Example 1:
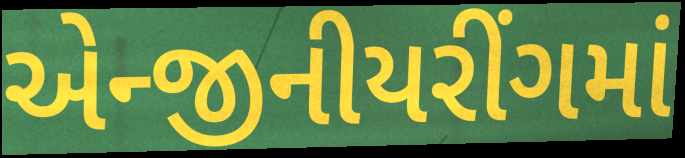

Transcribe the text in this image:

એન્જીનીયરીંગમાં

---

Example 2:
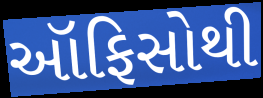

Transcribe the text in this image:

ઑફિસોથી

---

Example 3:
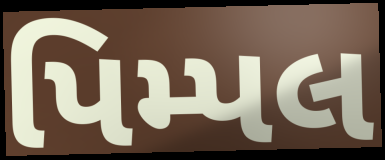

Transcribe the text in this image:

પિમ્પલ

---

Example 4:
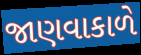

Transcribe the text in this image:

જાણવાકાળે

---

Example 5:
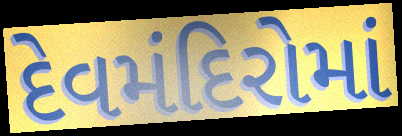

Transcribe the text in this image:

દેવમંદિરોમાં